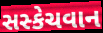
સસ્કેચવાન